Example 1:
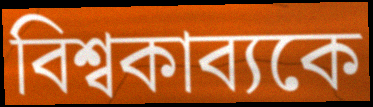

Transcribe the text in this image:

বিশ্বকাব্যকে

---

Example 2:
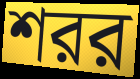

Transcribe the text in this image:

শরর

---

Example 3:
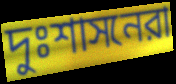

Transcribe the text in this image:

দুঃশাসনেরা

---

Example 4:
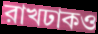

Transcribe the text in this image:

রাখঢাকও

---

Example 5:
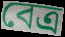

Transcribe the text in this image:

বেত্র